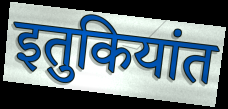
इतुकियांत